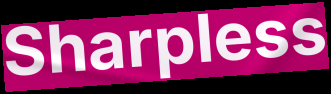
Sharpless